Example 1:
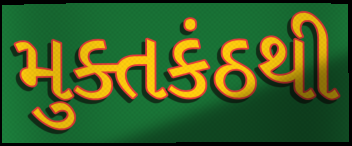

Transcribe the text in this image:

મુક્તકંઠથી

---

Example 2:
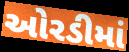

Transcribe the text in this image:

ઓરડીમાં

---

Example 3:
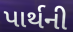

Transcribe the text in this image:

પાર્થની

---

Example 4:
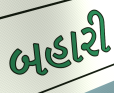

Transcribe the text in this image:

બહારી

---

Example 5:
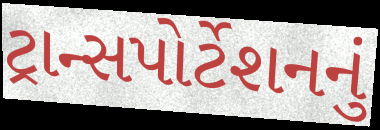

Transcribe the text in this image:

ટ્રાન્સપોર્ટેશનનું